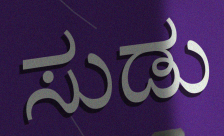
ಸುಡು